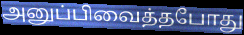
அனுப்பிவைத்தபோது